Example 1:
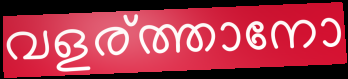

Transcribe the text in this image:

വളര്ത്താനോ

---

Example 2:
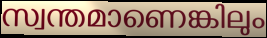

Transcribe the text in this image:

സ്വന്തമാണെങ്കിലും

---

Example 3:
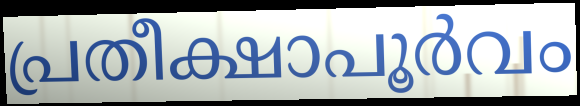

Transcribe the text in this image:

പ്രതീക്ഷാപൂർവം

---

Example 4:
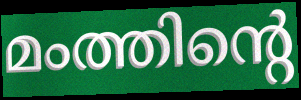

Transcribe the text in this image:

മംത്തിന്റെ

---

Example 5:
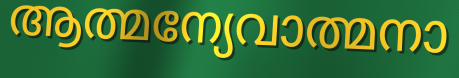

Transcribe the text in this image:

ആത്മന്യേവാത്മനാ